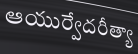
ఆయుర్వేదరీత్యా